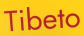
Tibeto